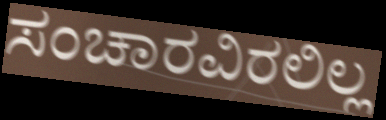
ಸಂಚಾರವಿರಲಿಲ್ಲ